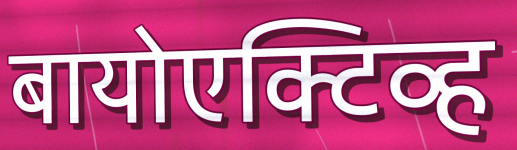
बायोएक्टिव्ह